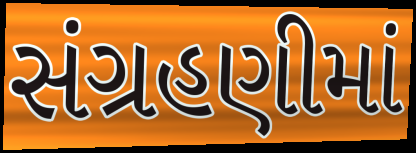
સંગ્રહણીમાં